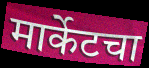
मार्केटचा